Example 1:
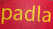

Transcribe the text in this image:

padla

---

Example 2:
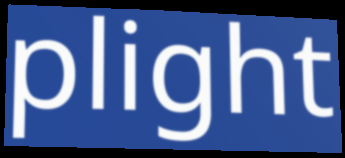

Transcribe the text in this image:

plight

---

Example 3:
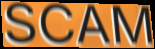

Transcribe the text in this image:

SCAM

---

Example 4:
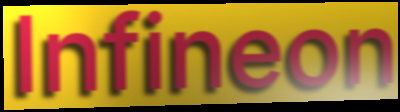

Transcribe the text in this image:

Infineon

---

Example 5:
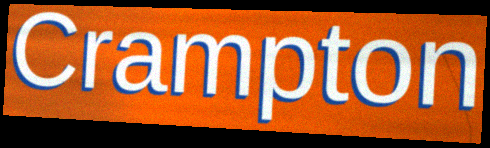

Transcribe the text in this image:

Crampton